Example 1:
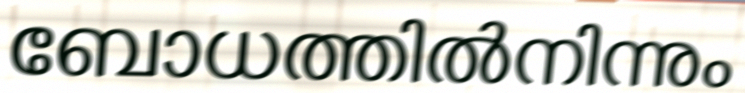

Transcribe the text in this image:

ബോധത്തിൽനിന്നും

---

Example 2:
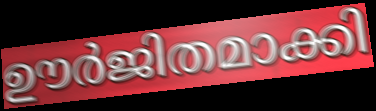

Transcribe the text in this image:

ഊർജിതമാക്കി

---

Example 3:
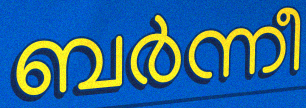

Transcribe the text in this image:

ബർന്നീ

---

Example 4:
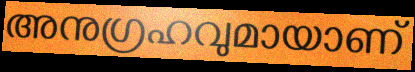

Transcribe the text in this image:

അനുഗ്രഹവുമായാണ്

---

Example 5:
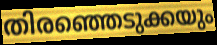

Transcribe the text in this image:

തിരഞ്ഞെടുക്കയും